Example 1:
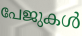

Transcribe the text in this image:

പേജുകൾ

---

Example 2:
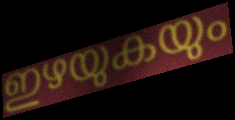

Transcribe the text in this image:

ഇഴയുകയും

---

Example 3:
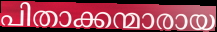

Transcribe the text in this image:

പിതാക്കന്മാരായ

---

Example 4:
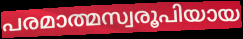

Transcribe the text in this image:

പരമാത്മസ്വരൂപിയായ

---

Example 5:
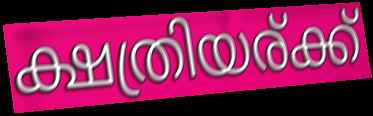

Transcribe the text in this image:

ക്ഷത്രിയര്ക്ക്